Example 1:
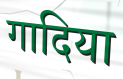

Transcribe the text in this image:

गादिया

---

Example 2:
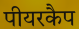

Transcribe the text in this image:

पीयरकैप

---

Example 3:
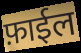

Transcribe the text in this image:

फ़ाईल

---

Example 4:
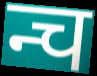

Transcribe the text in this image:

न्च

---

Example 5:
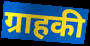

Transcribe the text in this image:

ग्राहकी